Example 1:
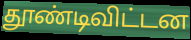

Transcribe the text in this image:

தூண்டிவிட்டன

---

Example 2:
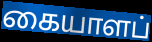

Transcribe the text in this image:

கையாளப்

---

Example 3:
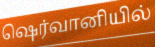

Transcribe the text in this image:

ஷெர்வானியில்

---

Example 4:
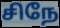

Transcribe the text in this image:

சிநே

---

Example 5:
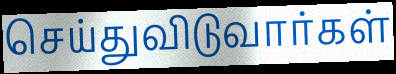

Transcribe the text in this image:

செய்துவிடுவார்கள்